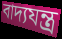
বাদ্যযন্ত্র